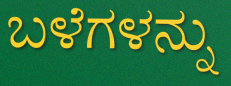
ಬಳೆಗಳನ್ನು